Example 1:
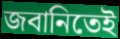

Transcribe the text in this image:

জবানিতেই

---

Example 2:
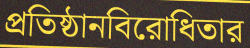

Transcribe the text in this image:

প্রতিষ্ঠানবিরোধিতার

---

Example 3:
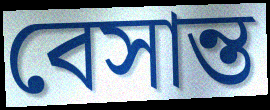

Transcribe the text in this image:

বেসান্ত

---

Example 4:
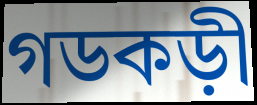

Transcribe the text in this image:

গডকড়ী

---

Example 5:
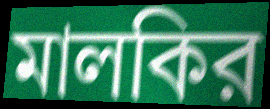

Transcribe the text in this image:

মালকির